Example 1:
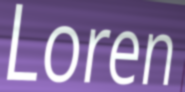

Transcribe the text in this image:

Loren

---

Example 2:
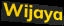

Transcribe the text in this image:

Wijaya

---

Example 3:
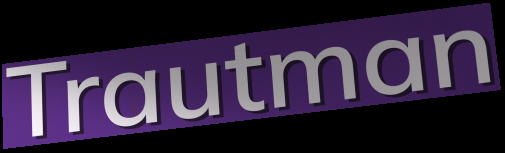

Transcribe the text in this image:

Trautman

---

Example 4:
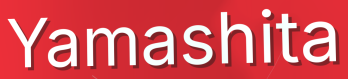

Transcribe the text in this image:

Yamashita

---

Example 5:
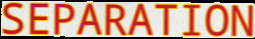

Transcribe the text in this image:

SEPARATION